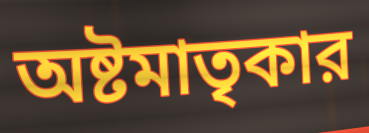
অষ্টমাতৃকার